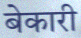
बेकारी